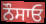
ਨੌਸਾਓ